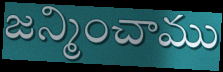
జన్మించాము